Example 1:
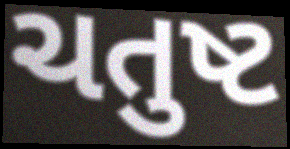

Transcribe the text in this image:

ચતુષ્ટ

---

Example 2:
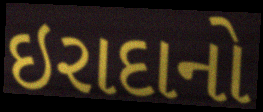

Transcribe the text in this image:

ઇરાદાનો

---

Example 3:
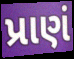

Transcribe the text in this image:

પ્રાણં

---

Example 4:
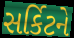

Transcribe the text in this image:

સર્કિટને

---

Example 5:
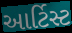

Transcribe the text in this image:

આર્ટિસ્ટ